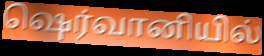
ஷெர்வானியில்